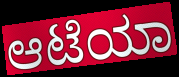
ಆಟೆಯಾ